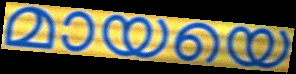
മായയെ